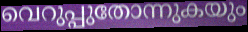
വെറുപ്പുതോന്നുകയും